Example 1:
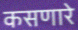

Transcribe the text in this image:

कसणारे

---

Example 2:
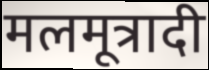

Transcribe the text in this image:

मलमूत्रादी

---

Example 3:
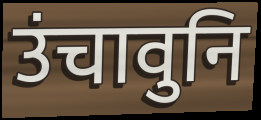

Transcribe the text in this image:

उंचावुनि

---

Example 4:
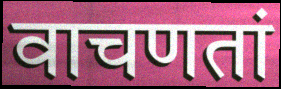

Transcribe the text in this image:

वाचणतां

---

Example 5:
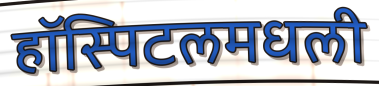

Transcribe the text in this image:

हॉस्पिटलमधली